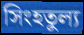
সিংহতুল্য